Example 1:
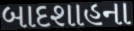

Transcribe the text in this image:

બાદશાહના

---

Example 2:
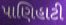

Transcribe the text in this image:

પાણિહાટી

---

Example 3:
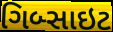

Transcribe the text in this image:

ગિબ્સાઇટ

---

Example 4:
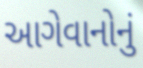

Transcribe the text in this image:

આગેવાનોનું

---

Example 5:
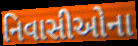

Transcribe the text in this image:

નિવાસીઓના